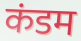
कंडम